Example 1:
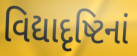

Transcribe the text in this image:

વિદ્યાદૃષ્ટિનાં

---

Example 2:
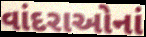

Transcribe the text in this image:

વાંદરાઓનાં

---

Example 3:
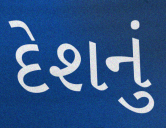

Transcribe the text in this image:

દેશનું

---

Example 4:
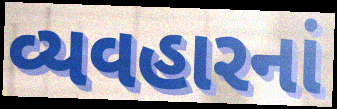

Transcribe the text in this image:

વ્યવહારનાં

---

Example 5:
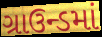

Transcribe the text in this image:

ગ્રાઉન્ડમાં